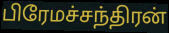
பிரேமச்சந்திரன்